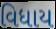
વિધાય